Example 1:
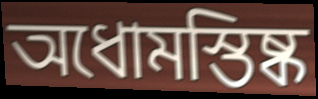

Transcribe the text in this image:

অধোমস্তিষ্ক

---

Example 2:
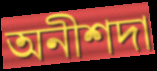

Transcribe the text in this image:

অনীশদা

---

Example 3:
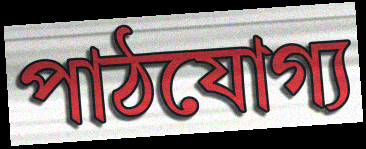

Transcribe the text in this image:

পাঠযোগ্য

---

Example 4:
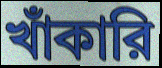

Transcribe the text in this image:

খাঁকারি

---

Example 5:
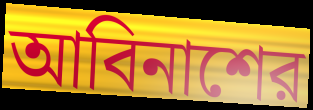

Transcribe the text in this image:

আবিনাশের